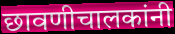
छावणीचालकांनी